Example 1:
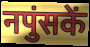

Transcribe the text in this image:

नपुंसकें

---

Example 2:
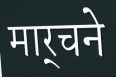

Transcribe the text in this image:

मार्चने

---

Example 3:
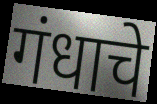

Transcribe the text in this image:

गंधाचे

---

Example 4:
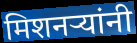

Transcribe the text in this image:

मिशनर्‍यांनी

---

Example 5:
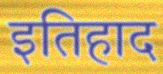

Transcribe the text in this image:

इतिहाद